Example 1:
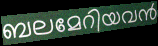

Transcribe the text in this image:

ബലമേറിയവൻ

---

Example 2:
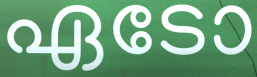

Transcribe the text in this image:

ഏടോ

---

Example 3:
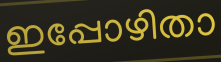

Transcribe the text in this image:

ഇപ്പോഴിതാ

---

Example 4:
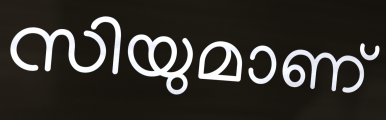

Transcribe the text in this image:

സിയുമാണ്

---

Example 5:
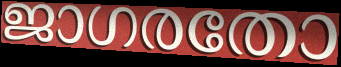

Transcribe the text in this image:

ജാഗരതോ